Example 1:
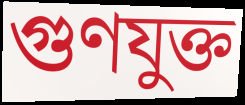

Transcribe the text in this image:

গুণযুক্ত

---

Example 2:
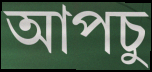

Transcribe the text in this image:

আপচু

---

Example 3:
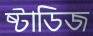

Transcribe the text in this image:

ষ্টাডিজ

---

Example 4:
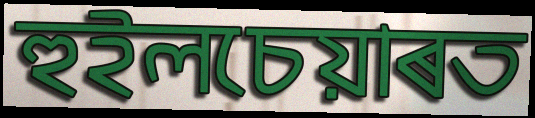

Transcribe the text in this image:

হুইলচেয়াৰত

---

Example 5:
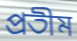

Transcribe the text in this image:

প্ৰতীম